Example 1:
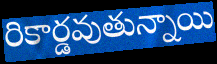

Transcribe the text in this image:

రికార్డవుతున్నాయి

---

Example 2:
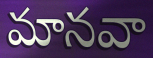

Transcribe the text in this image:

మానవా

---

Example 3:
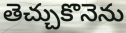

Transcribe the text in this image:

తెచ్చుకొనెను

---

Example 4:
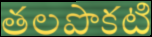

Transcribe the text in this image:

తలపొకటి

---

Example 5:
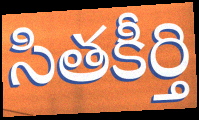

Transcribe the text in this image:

సితకీర్తి